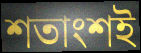
শতাংশই